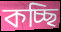
কচ্ছি